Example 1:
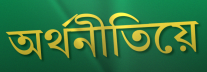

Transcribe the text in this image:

অৰ্থনীতিয়ে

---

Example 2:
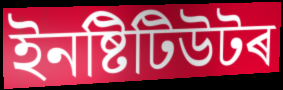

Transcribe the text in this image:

ইনষ্টিটিউটৰ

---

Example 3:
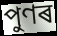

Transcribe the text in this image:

পুণৰ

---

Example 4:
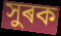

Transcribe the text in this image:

সুৰক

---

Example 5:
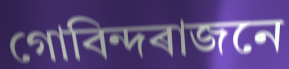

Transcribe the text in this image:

গোবিন্দৰাজনে